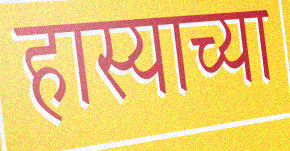
हास्याच्या